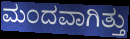
ಮಂದವಾಗಿತ್ತು